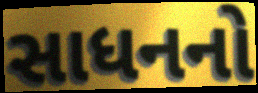
સાધનનો